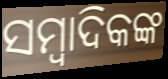
ସମ୍ୱାଦିକଙ୍କ